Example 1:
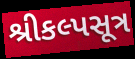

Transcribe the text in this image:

શ્રીકલ્પસૂત્ર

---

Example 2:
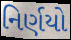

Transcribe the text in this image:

નિર્ણયો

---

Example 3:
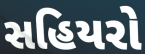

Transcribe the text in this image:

સહિયરો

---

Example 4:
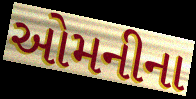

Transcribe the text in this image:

ઓમનીના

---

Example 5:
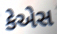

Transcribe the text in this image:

કેએસ